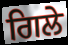
ਗਿਲੇ